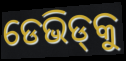
ଡେଭିଡ୍‍କୁ